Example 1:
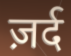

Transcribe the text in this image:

ज़र्द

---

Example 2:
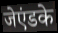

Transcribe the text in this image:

जेएंडके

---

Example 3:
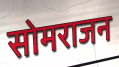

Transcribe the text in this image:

सोमराजन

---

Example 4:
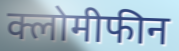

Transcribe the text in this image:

क्लोमीफीन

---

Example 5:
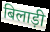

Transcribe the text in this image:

बिलाड़ी